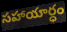
సహాయార్ధం